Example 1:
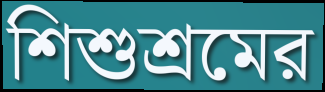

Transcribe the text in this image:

শিশুশ্রমের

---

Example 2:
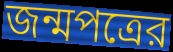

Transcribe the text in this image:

জন্মপত্রের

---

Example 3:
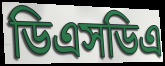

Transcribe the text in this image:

ডিএসডিএ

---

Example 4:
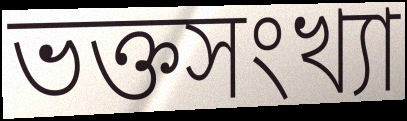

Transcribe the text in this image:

ভক্তসংখ্যা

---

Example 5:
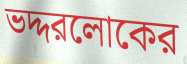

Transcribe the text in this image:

ভদ্দরলোকের